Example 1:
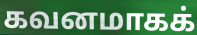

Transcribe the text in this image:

கவனமாகக்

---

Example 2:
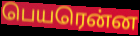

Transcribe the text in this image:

பெயரென்ன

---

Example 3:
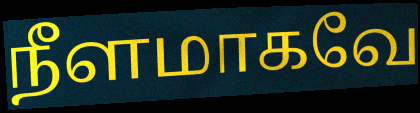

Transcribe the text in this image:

நீளமாகவே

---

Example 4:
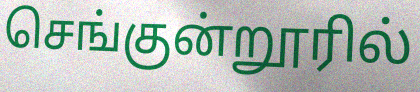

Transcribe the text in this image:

செங்குன்றூரில்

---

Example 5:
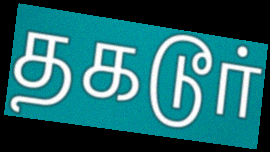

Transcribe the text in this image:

தகடூர்